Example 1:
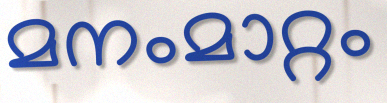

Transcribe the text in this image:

മനംമാറ്റം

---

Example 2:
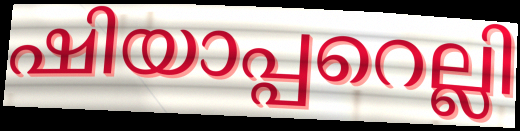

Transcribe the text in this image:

ഷിയാപ്പറെല്ലി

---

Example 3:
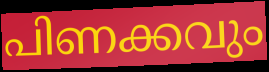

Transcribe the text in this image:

പിണക്കവും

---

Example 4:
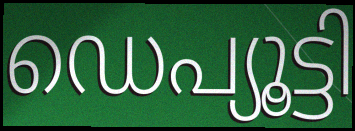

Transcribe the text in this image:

ഡെപ്യൂട്ടി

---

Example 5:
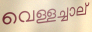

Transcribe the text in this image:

വെള്ളച്ചാല്